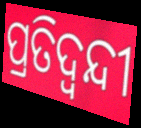
ପ୍ରତିଦ୍ଵନ୍ଦୀ